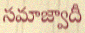
సమాజ్వాదీ